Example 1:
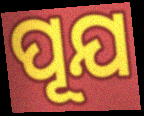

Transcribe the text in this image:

ପୂଯ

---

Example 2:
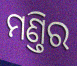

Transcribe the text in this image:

ମଣ୍ତିର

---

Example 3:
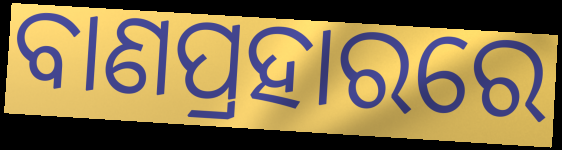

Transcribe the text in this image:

ବାଣପ୍ରହାରରେ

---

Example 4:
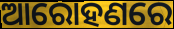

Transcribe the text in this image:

ଆରୋହଣରେ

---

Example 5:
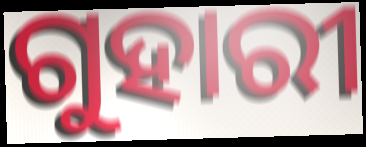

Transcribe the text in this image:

ଗୁହାରୀ